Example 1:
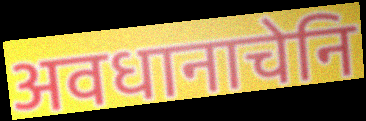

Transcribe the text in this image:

अवधानाचेनि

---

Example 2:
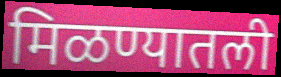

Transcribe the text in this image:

मिळण्यातली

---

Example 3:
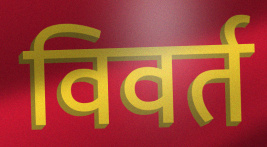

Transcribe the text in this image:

विवर्त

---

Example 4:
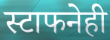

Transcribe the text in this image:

स्टाफनेही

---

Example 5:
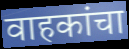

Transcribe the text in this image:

वाहकांचा